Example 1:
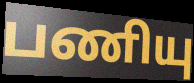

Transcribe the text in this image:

பணியு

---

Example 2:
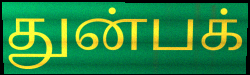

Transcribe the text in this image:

துன்பக்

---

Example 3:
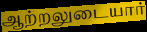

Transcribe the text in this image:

ஆற்றலுடையார்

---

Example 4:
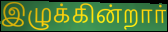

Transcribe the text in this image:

இழுக்கின்றார்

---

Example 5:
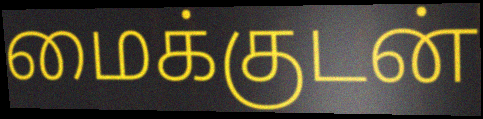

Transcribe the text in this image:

மைக்குடன்